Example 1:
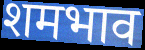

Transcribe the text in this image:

शमभाव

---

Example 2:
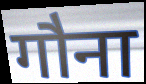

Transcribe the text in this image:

गौना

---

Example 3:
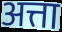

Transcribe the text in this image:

अत्ता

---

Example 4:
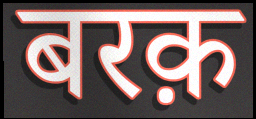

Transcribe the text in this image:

बरक़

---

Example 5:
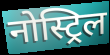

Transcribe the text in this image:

नोस्ट्रिल